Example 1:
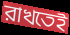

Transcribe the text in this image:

রাখতেই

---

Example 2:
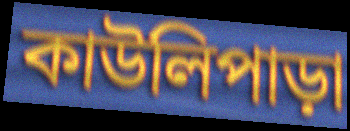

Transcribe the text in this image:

কাউলিপাড়া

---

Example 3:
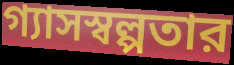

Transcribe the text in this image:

গ্যাসস্বল্পতার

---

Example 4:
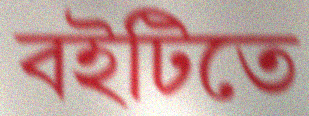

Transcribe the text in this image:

বইটিতে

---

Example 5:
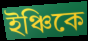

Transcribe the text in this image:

ইঞ্চিকে